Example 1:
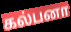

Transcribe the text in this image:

கல்பனா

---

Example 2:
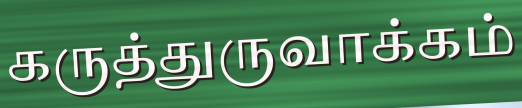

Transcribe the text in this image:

கருத்துருவாக்கம்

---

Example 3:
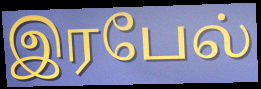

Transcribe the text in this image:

இரபேல்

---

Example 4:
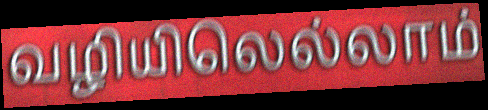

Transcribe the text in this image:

வழியிலெல்லாம்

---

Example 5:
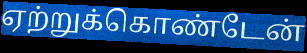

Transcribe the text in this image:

ஏற்றுக்கொண்டேன்